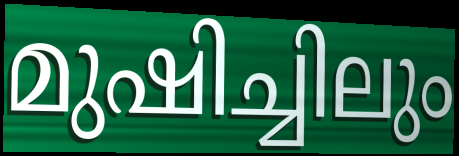
മുഷിച്ചിലും